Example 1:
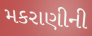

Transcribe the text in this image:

મકરાણીની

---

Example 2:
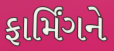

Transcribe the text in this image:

ફાર્મિંગને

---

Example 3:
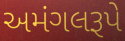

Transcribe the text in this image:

અમંગલરૂપે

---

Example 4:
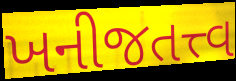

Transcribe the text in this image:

ખનીજતત્ત્વ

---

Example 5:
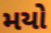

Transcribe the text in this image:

મયો